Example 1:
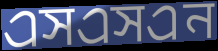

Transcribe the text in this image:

এসএসএন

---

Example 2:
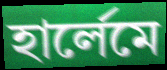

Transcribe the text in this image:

হার্লেমে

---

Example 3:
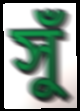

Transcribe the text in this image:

সুঁ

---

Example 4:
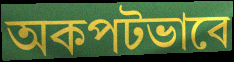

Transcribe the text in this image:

অকপটভাবে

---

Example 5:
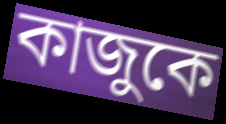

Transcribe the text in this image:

কাজুকে